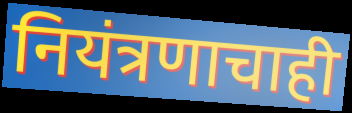
नियंत्रणाचाही